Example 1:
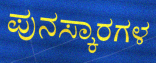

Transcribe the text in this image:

ಪುನಸ್ಕಾರಗಳ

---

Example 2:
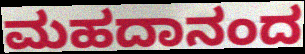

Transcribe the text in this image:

ಮಹದಾನಂದ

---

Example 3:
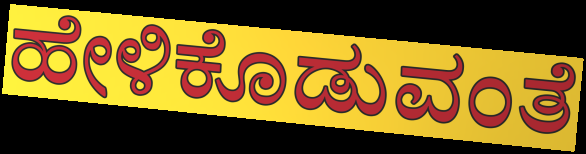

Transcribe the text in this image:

ಹೇಳಿಕೊಡುವಂತೆ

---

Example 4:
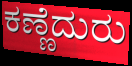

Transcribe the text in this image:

ಕಣ್ಣೆದುರು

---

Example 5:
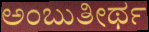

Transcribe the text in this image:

ಅಂಬುತೀರ್ಥ